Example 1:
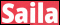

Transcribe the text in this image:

Saila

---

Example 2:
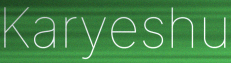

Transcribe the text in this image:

Karyeshu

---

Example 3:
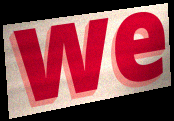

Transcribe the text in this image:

we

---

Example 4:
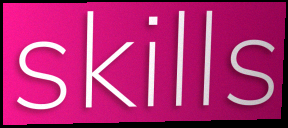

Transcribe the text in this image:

skills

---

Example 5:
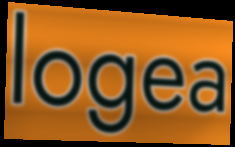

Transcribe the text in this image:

logea